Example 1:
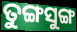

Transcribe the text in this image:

ତୁଙ୍ଗସୁଙ୍ଗ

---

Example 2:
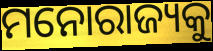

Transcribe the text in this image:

ମନୋରାଜ୍ୟକୁ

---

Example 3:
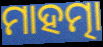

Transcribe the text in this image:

ମାହତ୍ମା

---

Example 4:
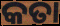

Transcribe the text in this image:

କତା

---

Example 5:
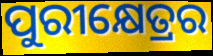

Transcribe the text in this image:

ପୁରୀକ୍ଷେତ୍ରର